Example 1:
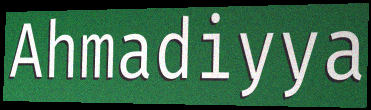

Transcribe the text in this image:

Ahmadiyya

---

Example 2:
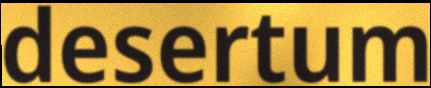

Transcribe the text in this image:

desertum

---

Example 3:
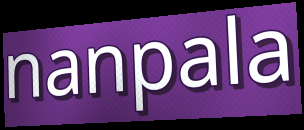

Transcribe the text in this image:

nanpala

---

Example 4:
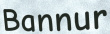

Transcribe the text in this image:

Bannur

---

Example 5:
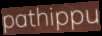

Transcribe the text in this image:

pathippu